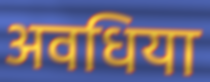
अवधिया